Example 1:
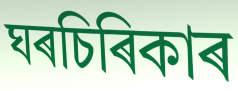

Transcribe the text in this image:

ঘৰচিৰিকাৰ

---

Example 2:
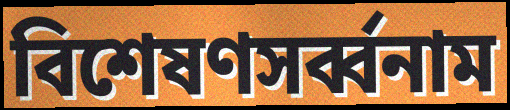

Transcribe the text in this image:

বিশেষণসৰ্ব্বনাম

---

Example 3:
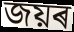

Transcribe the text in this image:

জয়ৰ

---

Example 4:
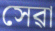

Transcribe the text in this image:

সেৱা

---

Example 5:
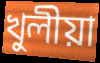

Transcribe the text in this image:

খুলীয়া